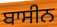
ਬਾਸੀਨ